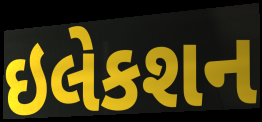
ઇલેકશન